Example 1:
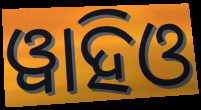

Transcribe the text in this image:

ୱାହିଓ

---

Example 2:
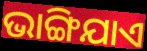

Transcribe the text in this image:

ଭାଙ୍ଗିଯାଏ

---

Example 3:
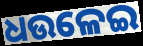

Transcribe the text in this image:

ଧଉଳେଇ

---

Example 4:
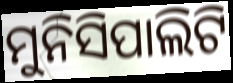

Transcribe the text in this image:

ମୁନିସିପାଲିଟି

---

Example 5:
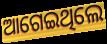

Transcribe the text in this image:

ଆଗେଇଥିଲେ